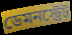
ডেমনস্ট্রেট